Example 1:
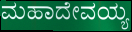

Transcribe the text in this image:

ಮಹಾದೇವಯ್ಯ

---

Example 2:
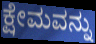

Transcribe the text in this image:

ಕ್ಷೇಮವನ್ನು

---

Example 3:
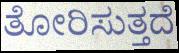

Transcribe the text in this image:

ತೋರಿಸುತ್ತದೆ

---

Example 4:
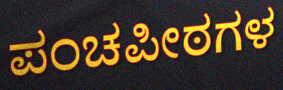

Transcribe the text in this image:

ಪಂಚಪೀಠಗಳ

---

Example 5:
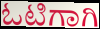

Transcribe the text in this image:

ಓಟಿಗಾಗಿ